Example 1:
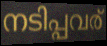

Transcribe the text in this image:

നടിപ്പവര്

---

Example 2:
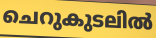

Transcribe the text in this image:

ചെറുകുടലിൽ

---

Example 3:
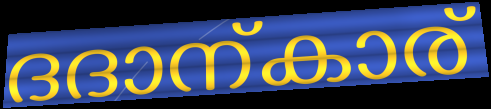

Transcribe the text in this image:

ദദാന്കാര്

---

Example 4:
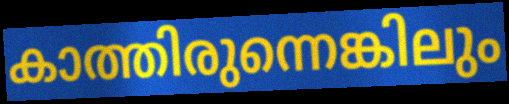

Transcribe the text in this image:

കാത്തിരുന്നെങ്കിലും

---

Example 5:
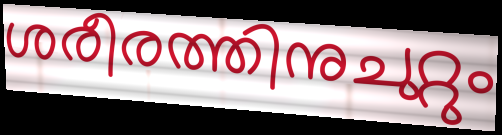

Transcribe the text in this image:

ശരീരത്തിനുചുറ്റും